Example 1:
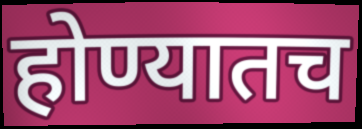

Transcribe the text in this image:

होण्यातच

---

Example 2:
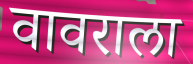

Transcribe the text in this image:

वावराला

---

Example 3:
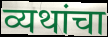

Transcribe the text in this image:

व्यथांचा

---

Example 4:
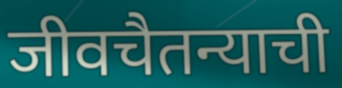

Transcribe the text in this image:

जीवचैतन्याची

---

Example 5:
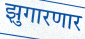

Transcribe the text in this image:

झुगारणार